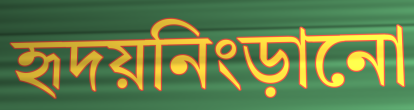
হৃদয়নিংড়ানো